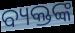
ବ୍ୟକ୍ତଙ୍କ